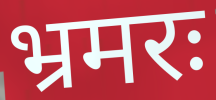
भ्रमरः